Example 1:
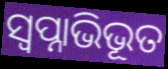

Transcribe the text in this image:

ସ୍ଵପ୍ନାଭିଭୂତ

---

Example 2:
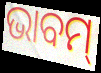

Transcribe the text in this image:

ଭାବମ୍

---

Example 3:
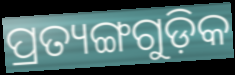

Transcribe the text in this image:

ପ୍ରତ୍ୟଙ୍ଗଗୁଡ଼ିକ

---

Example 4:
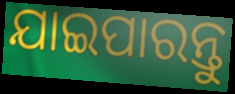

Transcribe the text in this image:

ଯାଇପାରନ୍ତୁ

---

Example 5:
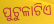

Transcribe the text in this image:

ପୁଟୁଳାଟିଏ